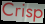
Crisp